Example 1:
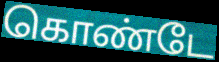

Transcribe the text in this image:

கொண்டே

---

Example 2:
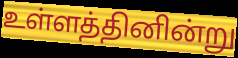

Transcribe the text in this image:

உள்ளத்தினின்று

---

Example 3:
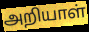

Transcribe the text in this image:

அறியாள்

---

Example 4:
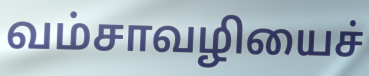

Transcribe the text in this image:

வம்சாவழியைச்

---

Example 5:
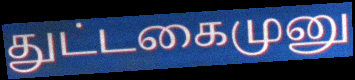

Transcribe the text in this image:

துட்டகைமுனு